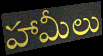
హామీలు